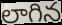
లాగిన